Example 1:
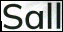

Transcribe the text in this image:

Sall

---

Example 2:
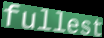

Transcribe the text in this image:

fullest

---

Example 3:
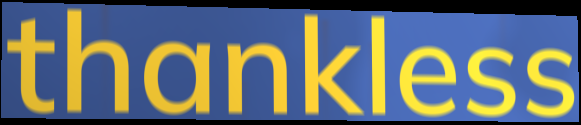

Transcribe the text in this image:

thankless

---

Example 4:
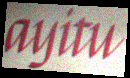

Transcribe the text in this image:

ayitu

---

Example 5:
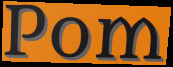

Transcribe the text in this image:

Pom